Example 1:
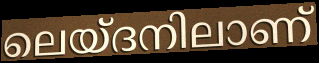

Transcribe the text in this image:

ലെയ്ദനിലാണ്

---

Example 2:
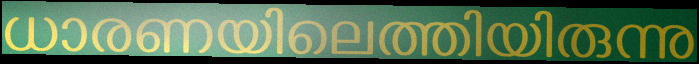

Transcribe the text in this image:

ധാരണയിലെത്തിയിരുന്നു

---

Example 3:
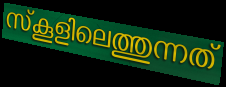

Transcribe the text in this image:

സ്‌കൂളിലെത്തുന്നത്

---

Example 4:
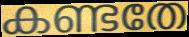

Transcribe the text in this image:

കണ്ടതേ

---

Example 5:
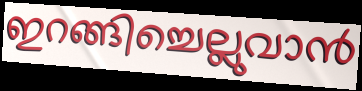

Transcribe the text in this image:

ഇറങ്ങിച്ചെല്ലുവാൻ